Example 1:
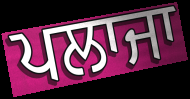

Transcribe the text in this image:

ਪਲਾਜਾ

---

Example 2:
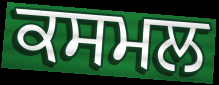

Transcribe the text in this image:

ਕਸਮਲ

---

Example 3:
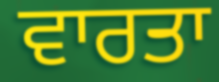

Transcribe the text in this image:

ਵਾਰਤਾ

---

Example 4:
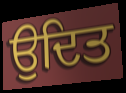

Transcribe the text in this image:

ਉਦਿਤ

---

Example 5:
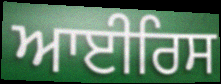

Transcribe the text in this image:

ਆਈਰਿਸ